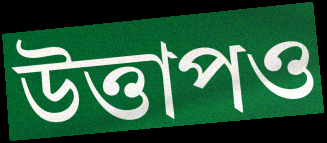
উত্তাপও